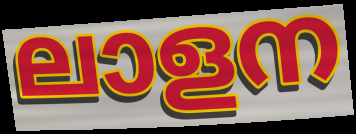
ലാളന